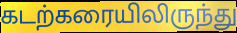
கடற்கரையிலிருந்து